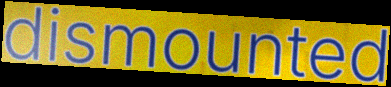
dismounted